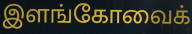
இளங்கோவைக்